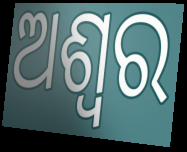
ଅଶ୍ୱର